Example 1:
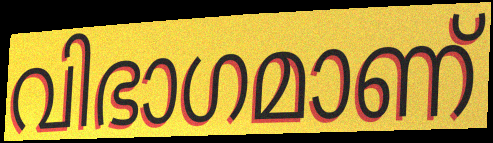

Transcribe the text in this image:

വിഭാഗമാണ്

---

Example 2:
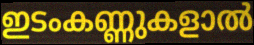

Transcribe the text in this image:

ഇടംകണ്ണുകളാൽ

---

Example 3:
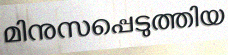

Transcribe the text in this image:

മിനുസപ്പെടുത്തിയ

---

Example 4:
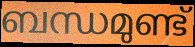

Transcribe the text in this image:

ബന്ധമുണ്ട്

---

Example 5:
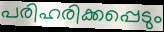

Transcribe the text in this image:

പരിഹരിക്കപ്പെടും